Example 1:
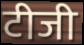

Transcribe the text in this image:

टीजी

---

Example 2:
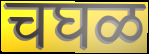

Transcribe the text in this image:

चघळ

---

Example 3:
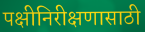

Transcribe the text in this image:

पक्षीनिरीक्षणासाठी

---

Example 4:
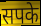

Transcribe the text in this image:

सपके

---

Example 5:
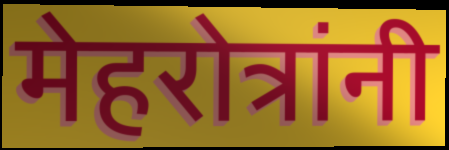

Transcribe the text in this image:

मेहरोत्रांनी